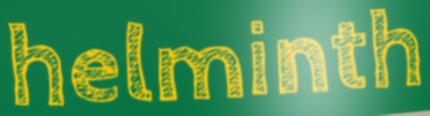
helminth